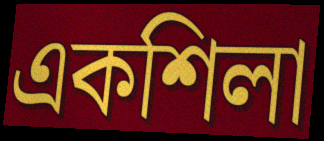
একশিলা